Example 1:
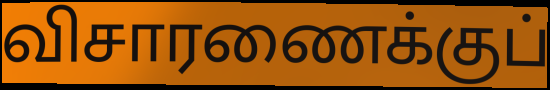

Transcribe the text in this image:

விசாரணைக்குப்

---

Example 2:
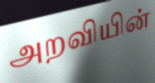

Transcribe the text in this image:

அறவியின்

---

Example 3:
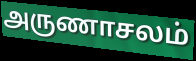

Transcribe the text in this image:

அருணாசலம்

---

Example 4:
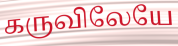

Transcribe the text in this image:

கருவிலேயே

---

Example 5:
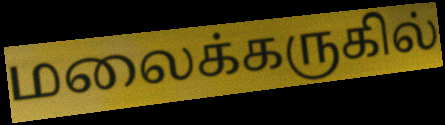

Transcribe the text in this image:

மலைக்கருகில்